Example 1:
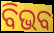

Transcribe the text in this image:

ବିଭବ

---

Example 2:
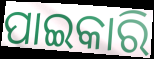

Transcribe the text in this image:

ପାଇକାରି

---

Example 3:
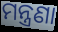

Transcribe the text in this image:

ମନ୍ତ୍ରଣା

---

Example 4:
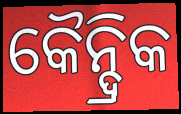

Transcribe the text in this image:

କୈନ୍ଦ୍ରିକ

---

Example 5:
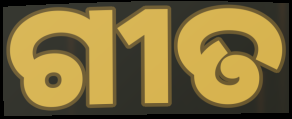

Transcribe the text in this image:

ଗୀତ